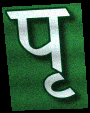
पृ